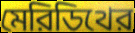
মেরিডিথের